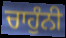
ਚਾਹੁੰਨੀ